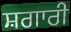
ਸ਼ਗਾਰੀ